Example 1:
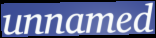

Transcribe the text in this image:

unnamed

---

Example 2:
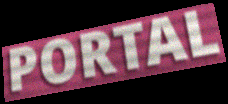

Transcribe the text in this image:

PORTAL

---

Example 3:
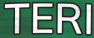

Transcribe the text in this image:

TERI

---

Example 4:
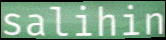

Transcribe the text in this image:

salihin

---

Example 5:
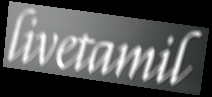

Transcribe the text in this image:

livetamil